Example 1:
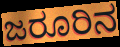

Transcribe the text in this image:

ಜರೂರಿನ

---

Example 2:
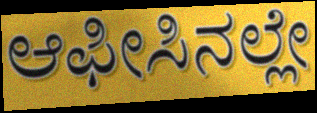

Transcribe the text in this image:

ಆಫೀಸಿನಲ್ಲೇ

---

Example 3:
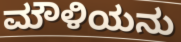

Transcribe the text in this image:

ಮೌಳಿಯನು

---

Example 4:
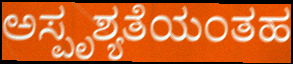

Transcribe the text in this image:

ಅಸ್ಪೃಶ್ಯತೆಯಂತಹ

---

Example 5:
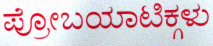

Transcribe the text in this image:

ಪ್ರೋಬಯಾಟಿಕ್ಗಳು